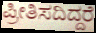
ಪ್ರೀತಿಸದಿದ್ದರೆ